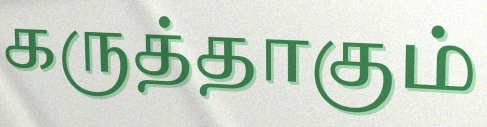
கருத்தாகும்